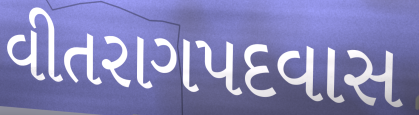
વીતરાગપદવાસ